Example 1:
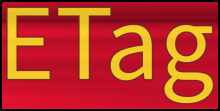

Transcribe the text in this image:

ETag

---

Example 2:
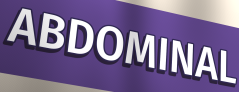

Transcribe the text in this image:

ABDOMINAL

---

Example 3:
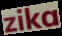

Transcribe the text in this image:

zika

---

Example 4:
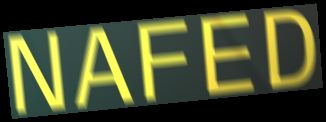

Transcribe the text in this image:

NAFED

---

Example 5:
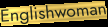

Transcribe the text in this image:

Englishwoman